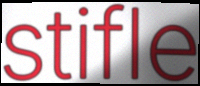
stifle